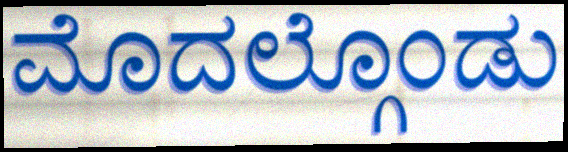
ಮೊದಲ್ಗೊಂಡು